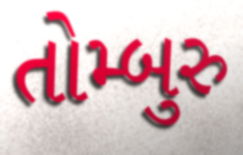
તોમ્બુરુ